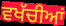
ਵਖੱਚੀਆਂ